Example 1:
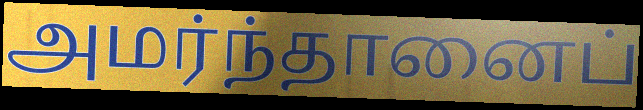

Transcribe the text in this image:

அமர்ந்தானைப்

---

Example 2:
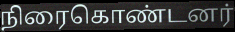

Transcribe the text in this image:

நிரைகொண்டனர்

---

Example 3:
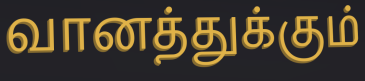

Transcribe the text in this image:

வானத்துக்கும்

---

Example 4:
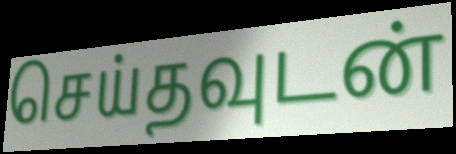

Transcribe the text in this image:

செய்தவுடன்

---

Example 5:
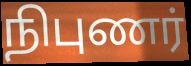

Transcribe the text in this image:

நிபுணர்